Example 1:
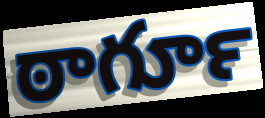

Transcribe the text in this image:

ఠాగూర్‍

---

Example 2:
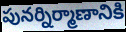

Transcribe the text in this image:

పునర్నిర్మాణానికి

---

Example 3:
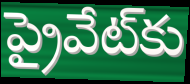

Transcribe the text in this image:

ప్రైవేట్‌కు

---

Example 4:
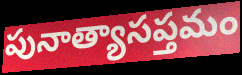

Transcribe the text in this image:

పునాత్యాసప్తమం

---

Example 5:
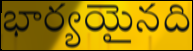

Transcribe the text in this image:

భార్యయైనది